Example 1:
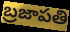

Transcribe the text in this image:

బ్రజాపతి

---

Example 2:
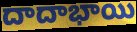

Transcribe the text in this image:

దాదాభాయి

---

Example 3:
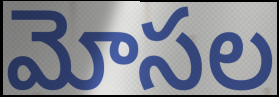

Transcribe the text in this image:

మోసల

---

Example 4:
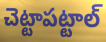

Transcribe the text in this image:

చెట్టాపట్టాల్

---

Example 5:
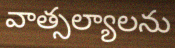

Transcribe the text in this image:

వాత్సల్యాలను